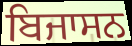
ਬਿਜਾਸਨ